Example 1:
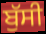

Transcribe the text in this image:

ਬੁੱਸੀ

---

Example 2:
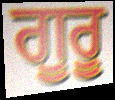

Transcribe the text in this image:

ਗੂਰੂ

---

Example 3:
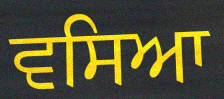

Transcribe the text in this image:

ਵਸਿਆ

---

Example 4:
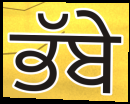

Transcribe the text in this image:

ਭੱਬੇ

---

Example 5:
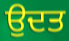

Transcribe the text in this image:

ਉਦਤ